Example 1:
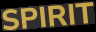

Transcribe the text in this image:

SPIRIT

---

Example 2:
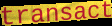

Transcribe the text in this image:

transact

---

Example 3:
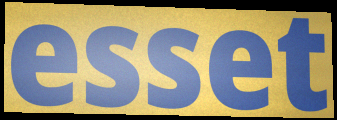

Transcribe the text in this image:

esset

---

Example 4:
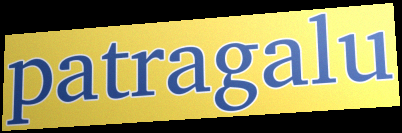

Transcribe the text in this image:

patragalu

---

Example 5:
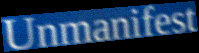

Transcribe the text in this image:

Unmanifest